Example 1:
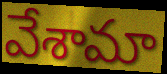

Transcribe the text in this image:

వేశామా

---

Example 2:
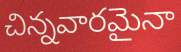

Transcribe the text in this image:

చిన్నవారమైనా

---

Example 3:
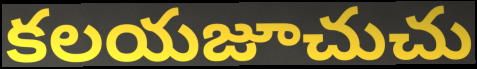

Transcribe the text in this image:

కలయజూచుచు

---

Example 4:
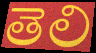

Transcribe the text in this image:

తెలి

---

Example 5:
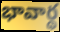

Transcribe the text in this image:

భావార్థ